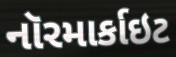
નૉરમાર્કાઇટ